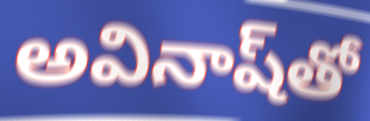
అవినాష్‌తో